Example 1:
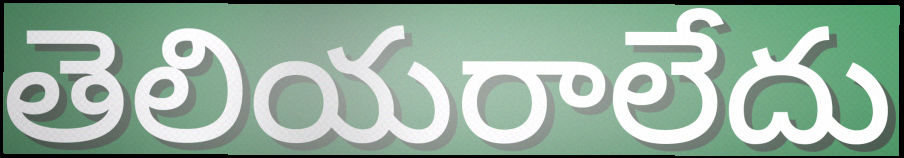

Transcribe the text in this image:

తెలియరాలేదు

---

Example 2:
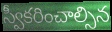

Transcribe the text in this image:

స్వీకరించాల్సిన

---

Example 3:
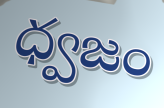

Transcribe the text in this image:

ధ్వజం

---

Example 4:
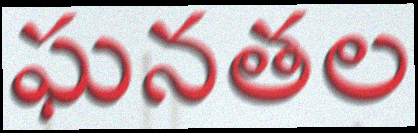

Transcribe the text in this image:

ఘనతల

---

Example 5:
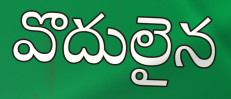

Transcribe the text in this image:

వొదులైన